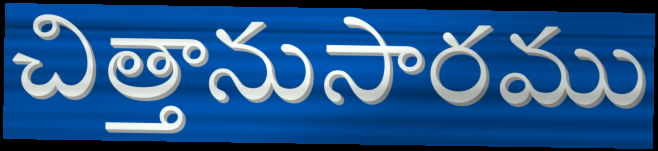
చిత్తానుసారము